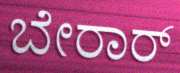
ಬೇರಾರ್